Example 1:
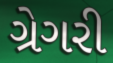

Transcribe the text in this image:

ગ્રેગરી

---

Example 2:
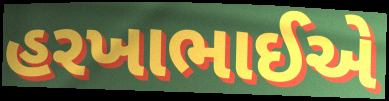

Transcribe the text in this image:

હરખાભાઈએ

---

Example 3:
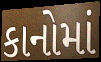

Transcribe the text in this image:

કાનોમાં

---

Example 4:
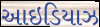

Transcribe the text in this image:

આઇડિયાઝ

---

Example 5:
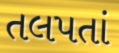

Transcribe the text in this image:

તલપતાં